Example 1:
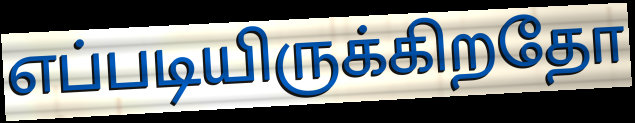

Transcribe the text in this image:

எப்படியிருக்கிறதோ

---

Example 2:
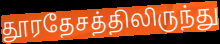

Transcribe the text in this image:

தூரதேசத்திலிருந்து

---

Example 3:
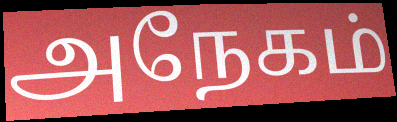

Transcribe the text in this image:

அநேகம்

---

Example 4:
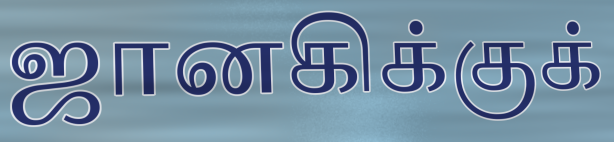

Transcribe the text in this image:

ஜானகிக்குக்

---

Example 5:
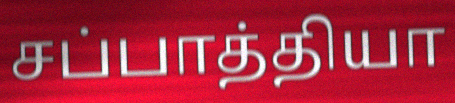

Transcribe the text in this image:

சப்பாத்தியா